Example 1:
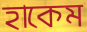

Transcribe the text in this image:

হাকেম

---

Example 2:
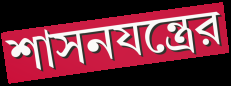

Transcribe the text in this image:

শাসনযন্ত্রের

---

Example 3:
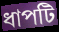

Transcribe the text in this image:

ধাপটি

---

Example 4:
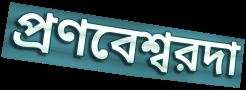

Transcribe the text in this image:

প্রণবেশ্বরদা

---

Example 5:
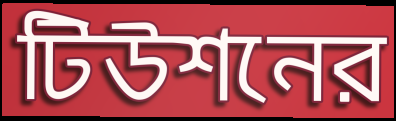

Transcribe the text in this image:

টিউশনের